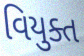
વિયુક્ત